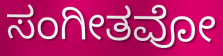
ಸಂಗೀತವೋ